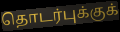
தொடர்புக்குக்